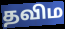
தவிம